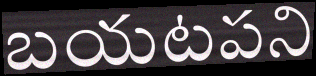
బయటపని